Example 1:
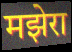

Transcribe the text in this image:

मझेरा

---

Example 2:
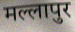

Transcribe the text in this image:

मल्लापुर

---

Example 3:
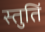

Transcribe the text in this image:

स्तुतिं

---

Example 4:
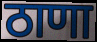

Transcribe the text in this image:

ठाणा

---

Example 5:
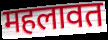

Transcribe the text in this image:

महलावत